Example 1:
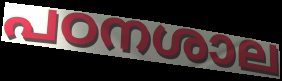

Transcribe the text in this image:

പഠനശാല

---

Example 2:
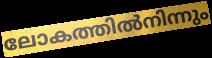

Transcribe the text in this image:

ലോകത്തിൽനിന്നും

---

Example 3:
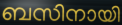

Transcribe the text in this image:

ബസിനായി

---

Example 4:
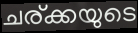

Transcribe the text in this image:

ചര്ക്കയുടെ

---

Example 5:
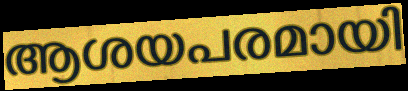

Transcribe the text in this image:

ആശയപരമായി